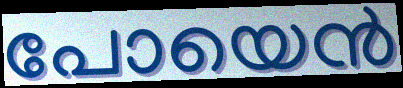
പോയെൻ